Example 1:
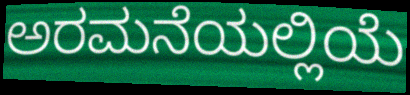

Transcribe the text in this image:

ಅರಮನೆಯಲ್ಲಿಯೆ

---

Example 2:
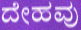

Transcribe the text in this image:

ದೇಹವು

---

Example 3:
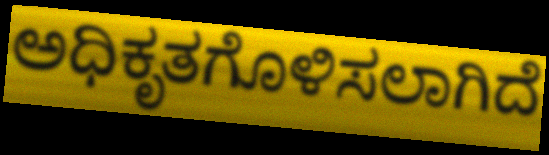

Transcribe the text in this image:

ಅಧಿಕೃತಗೊಳಿಸಲಾಗಿದೆ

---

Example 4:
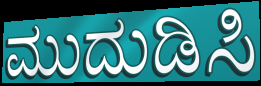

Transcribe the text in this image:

ಮುದುಡಿಸಿ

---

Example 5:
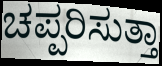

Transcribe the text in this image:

ಚಪ್ಪರಿಸುತ್ತಾ